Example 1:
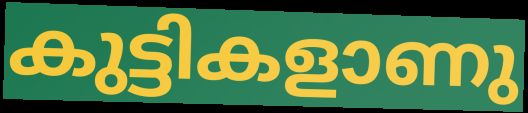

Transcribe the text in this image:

കുട്ടികളാണു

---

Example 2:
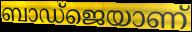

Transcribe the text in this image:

ബാഡ്ജെയാണ്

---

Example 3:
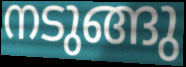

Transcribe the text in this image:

നടുങ്ങു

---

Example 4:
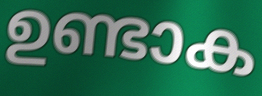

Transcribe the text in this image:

ഉണ്ടാക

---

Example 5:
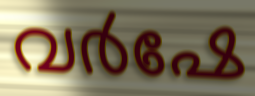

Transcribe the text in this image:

വർഷേ